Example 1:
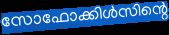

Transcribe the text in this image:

സോഫോക്കിൾസിന്റെ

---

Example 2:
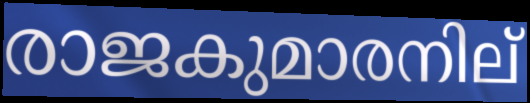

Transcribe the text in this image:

രാജകുമാരനില്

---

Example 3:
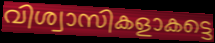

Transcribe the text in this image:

വിശ്വാസികളാകട്ടെ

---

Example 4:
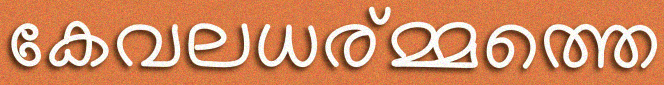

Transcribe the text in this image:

കേവലധര്മ്മത്തെ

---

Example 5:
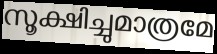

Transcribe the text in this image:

സൂക്ഷിച്ചുമാത്രമേ